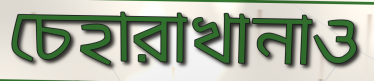
চেহারাখানাও